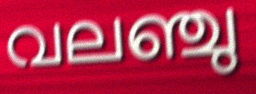
വലഞ്ചു